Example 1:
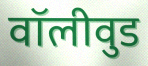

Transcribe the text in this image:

वॉलीवुड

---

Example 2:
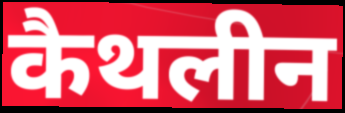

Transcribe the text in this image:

कैथलीन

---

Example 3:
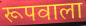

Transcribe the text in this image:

रूपवाला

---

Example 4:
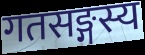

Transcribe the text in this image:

गतसङ्गस्य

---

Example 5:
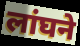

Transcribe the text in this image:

लांघने